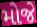
મોજે